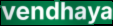
vendhaya